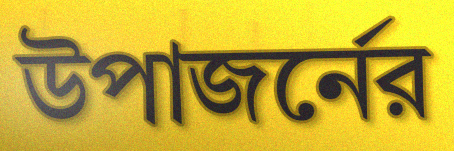
উপাজর্নের